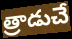
త్రాడుచే